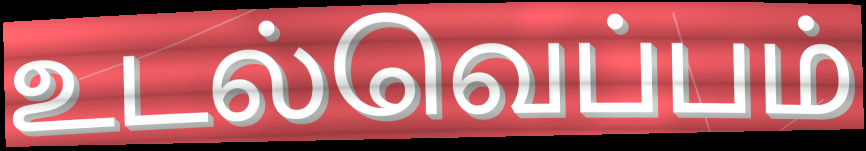
உடல்வெப்பம்